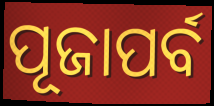
ପୂଜାପର୍ବ